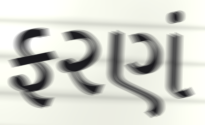
ફરણં